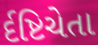
ર્દષ્ટિચેતા